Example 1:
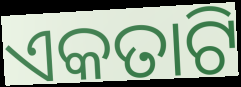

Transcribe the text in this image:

ଏକତାଟି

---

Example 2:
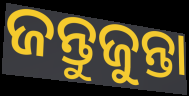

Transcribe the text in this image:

ଜନ୍ତୁଜୁନ୍ତା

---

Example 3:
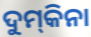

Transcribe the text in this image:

ଦୁମ୍‌କିନା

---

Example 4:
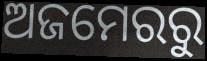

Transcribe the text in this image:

ଅଜମେରରୁ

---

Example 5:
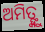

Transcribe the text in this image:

ଅମିତ୍ଙ୍କୁ